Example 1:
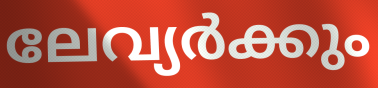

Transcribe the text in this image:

ലേവ്യർക്കും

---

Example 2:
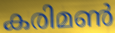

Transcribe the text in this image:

കരിമൺ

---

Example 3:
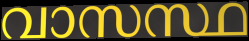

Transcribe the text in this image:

വാസസ്ഥ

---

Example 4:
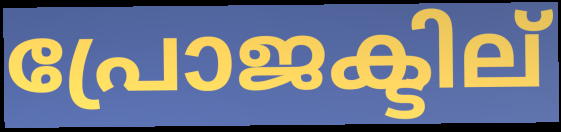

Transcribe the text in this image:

പ്രോജക്ടില്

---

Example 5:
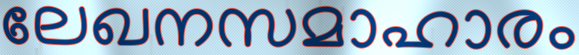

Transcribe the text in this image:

ലേഖനസമാഹാരം